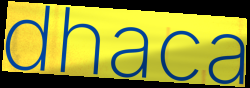
dhaca